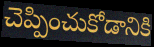
చెప్పించుకోడానికి